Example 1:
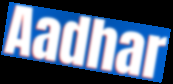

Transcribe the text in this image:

Aadhar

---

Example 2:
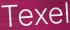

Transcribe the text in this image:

Texel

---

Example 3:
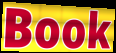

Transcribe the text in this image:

Book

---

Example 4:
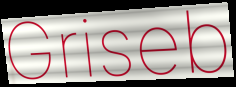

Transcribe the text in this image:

Griseb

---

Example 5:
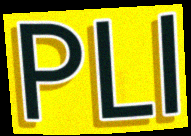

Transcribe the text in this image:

PLI